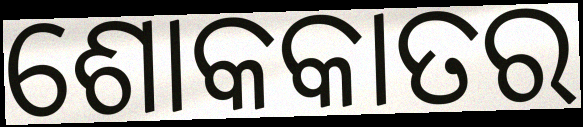
ଶୋକକାତର